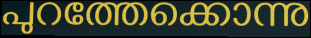
പുറത്തേക്കൊന്നു